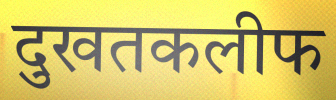
दुखतकलीफ